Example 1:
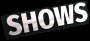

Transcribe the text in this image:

SHOWS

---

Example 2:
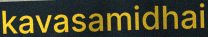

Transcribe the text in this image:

kavasamidhai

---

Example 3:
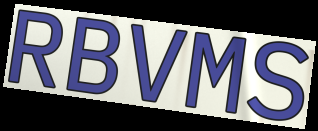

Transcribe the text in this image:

RBVMS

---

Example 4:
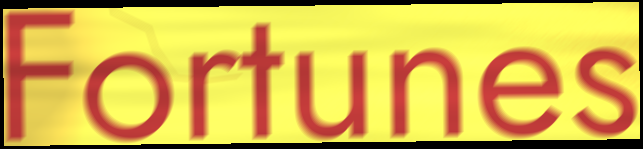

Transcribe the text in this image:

Fortunes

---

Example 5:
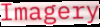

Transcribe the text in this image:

Imagery